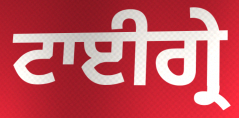
ਟਾਈਗ੍ਰੇ